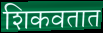
शिकवतात